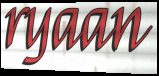
ryaan